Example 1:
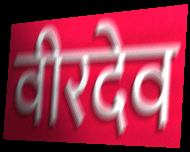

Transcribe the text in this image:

वीरदेव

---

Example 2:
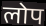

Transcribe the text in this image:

लोप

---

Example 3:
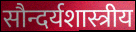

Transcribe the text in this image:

सौन्दर्यशास्त्रीय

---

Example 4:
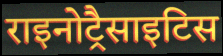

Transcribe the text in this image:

राइनोट्रैसाइटिस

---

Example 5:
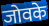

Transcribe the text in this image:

जोवके